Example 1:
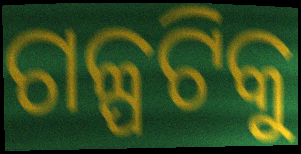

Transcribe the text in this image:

ଗଳ୍ପଟିକୁ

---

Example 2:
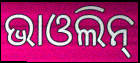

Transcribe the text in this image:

ଭାଓଲିନ୍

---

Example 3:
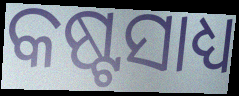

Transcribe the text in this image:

କଷ୍ଟସାଧ୍ଯ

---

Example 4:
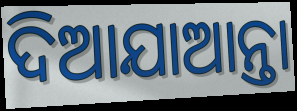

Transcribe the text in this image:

ଦିଆଯାଆନ୍ତା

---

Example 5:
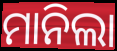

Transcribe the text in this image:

ମାନିଲା